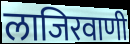
लाजिरवाणी